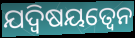
ଯଦ୍ଵିଷୟତ୍ଵେନ